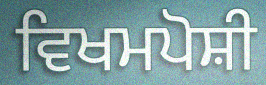
ਵਿਖਮਪੋਸ਼ੀ